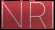
NRI